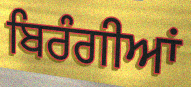
ਬਿਰੰਗੀਆਂ